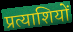
प्रत्याशियों